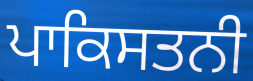
ਪਾਕਿਸਤਨੀ